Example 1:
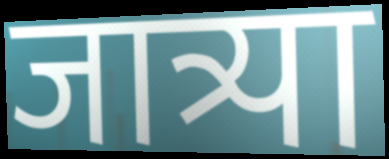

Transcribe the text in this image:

जात्र्या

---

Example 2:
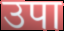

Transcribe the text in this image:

उपा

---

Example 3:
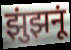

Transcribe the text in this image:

झुंझनूं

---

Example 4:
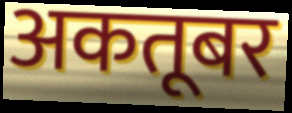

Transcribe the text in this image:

अकतूबर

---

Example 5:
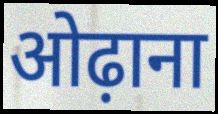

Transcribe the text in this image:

ओढ़ाना